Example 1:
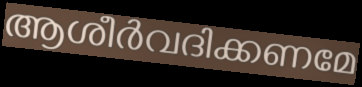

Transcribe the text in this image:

ആശീർവദിക്കണമേ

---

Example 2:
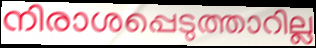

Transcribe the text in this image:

നിരാശപ്പെടുത്താറില്ല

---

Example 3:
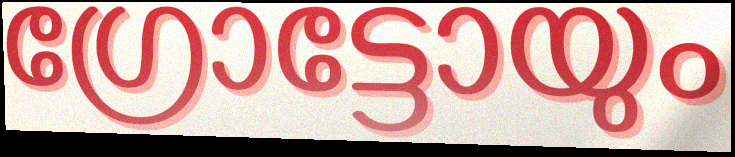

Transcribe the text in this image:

ഗ്രോട്ടോയും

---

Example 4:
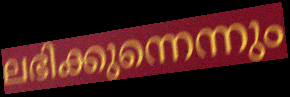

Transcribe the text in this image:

ലഭിക്കുന്നെന്നും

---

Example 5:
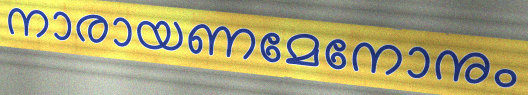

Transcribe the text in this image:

നാരായണമേനോനും